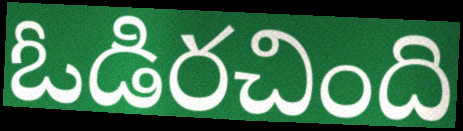
ఓడిరచింది